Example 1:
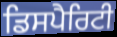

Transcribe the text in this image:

ਡਿਸਪੈਰਿਟੀ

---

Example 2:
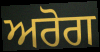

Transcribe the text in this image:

ਅਰੋਗ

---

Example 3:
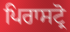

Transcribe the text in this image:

ਪਿਰਾਸਟ੍ਰੋ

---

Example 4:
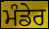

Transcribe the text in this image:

ਮੰਡੇਰ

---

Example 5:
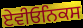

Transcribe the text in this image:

ਏਵੀਓਨਿਕਸ